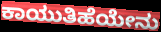
ಕಾಯುತಿಹೆಯೇನು